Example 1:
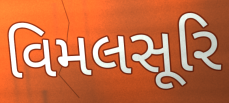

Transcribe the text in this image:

વિમલસૂરિ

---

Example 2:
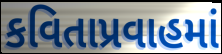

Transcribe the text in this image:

કવિતાપ્રવાહમાં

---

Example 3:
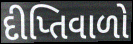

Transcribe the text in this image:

દીપ્તિવાળો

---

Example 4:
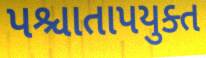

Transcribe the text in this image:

પશ્ચાતાપયુક્ત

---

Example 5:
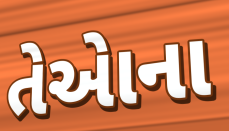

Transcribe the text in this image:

તેએાના